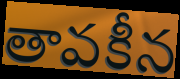
తావకీన